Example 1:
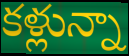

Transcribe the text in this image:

కళ్లున్నా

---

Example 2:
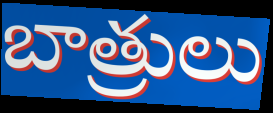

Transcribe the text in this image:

బాత్రులు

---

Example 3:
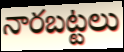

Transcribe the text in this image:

నారబట్టలు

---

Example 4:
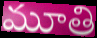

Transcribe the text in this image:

మూతి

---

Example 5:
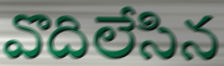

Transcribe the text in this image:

వొదిలేసిన